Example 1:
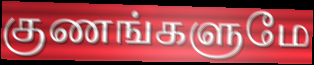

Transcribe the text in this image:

குணங்களுமே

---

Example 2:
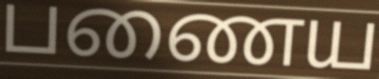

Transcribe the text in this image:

பணைய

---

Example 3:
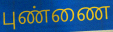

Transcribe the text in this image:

புண்ணை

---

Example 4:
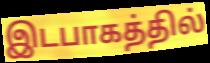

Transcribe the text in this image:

இடபாகத்தில்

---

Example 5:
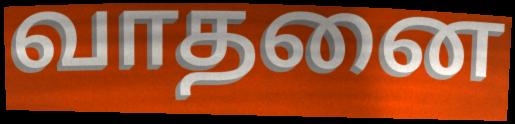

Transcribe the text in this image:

வாதனை